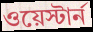
ওয়েস্টার্ন